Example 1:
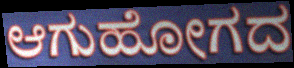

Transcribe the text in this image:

ಆಗುಹೋಗದ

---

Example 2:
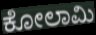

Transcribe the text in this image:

ಕೋಲಾಮಿ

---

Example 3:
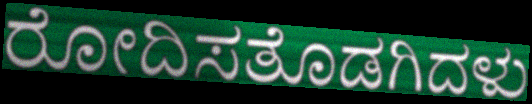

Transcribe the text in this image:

ರೋದಿಸತೊಡಗಿದಳು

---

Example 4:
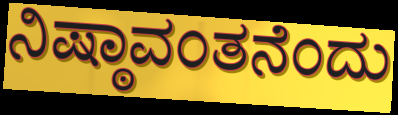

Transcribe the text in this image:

ನಿಷ್ಠಾವಂತನೆಂದು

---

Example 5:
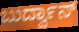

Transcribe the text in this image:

ಬುರ್ದ್ವಾನ್